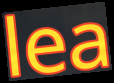
lea